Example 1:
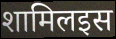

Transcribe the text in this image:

शामिलइस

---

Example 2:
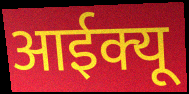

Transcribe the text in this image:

आईक्‍यू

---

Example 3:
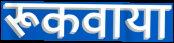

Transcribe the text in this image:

रूकवाया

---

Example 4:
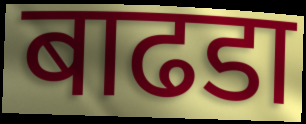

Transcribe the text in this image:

बाढडा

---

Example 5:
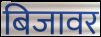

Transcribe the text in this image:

बिजावर